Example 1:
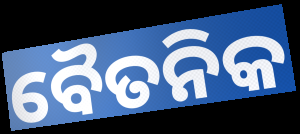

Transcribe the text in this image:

ବୈତନିକ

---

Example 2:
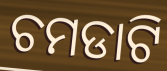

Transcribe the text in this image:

ଚମଡାଟି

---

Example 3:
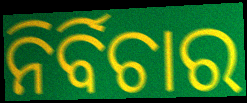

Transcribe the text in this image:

ନିର୍ବିଚାର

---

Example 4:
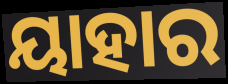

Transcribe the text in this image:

ୟାହାର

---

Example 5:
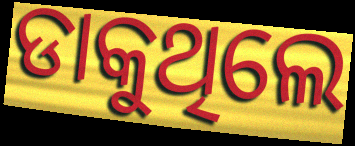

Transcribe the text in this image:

ଡାକୁଥିଲେ